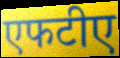
एफटीए